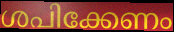
ശപിക്കേണം